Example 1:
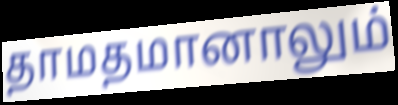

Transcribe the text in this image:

தாமதமானாலும்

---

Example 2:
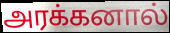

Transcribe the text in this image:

அரக்கனால்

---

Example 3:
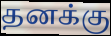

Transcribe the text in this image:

தனக்கு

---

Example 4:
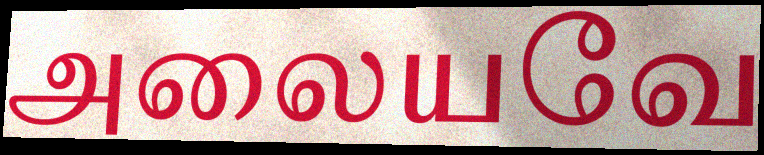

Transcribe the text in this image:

அலையவே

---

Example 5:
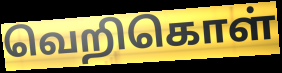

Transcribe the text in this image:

வெறிகொள்